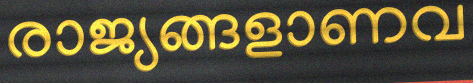
രാജ്യങ്ങളാണവ